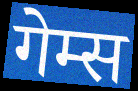
गेम्स